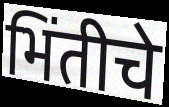
भिंतीचे